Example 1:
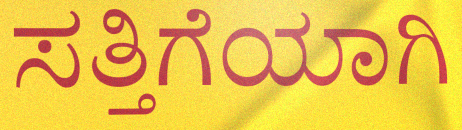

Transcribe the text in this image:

ಸತ್ತಿಗೆಯಾಗಿ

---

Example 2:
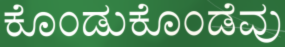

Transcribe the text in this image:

ಕೊಂಡುಕೊಂಡೆವು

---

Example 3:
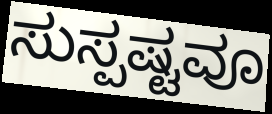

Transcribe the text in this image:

ಸುಸ್ಪಷ್ಟವೂ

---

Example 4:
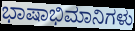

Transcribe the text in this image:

ಭಾಷಾಭಿಮಾನಿಗಳು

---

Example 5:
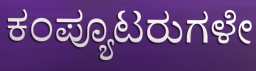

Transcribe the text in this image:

ಕಂಪ್ಯೂಟರುಗಳೇ